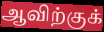
ஆவிற்குக்